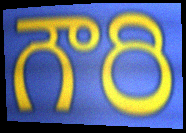
గౌరి